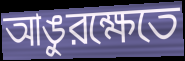
আঙুরক্ষেতে